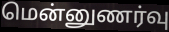
மென்னுணர்வு